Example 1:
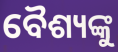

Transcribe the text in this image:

ବୈଶ୍ୟଙ୍କୁ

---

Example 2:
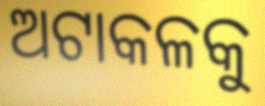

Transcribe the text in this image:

ଅଟାକଳକୁ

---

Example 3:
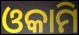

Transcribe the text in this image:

ଓକାମି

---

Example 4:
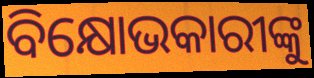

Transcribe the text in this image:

ବିକ୍ଷୋଭକାରୀଙ୍କୁ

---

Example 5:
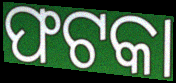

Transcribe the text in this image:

ଫଟକା